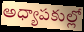
అధ్యాపకుల్లో